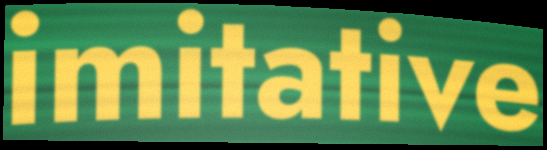
imitative